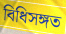
বিধিসঙ্গত